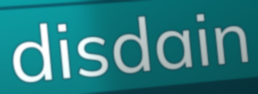
disdain